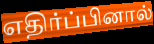
எதிர்ப்பினால்